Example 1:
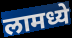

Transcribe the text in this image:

लामध्ये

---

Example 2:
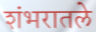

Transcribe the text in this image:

शंभरातले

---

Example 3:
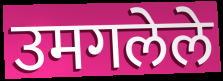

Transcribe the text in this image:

उमगलेले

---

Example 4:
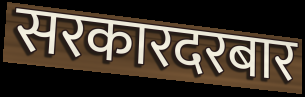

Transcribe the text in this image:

सरकारदरबार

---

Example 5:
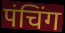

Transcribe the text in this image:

पंचिंग